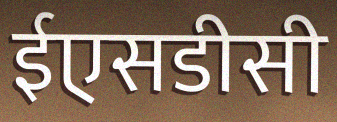
ईएसडीसी